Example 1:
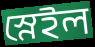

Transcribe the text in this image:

স্নেইল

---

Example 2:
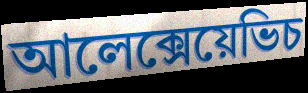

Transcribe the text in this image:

আলেক্সেয়েভিচ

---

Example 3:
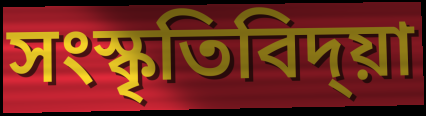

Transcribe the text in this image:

সংস্কৃতিবিদ্য়া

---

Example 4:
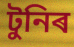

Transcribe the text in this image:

টুনিৰ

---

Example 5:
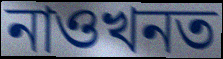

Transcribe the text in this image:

নাওখনত